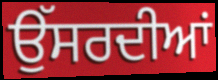
ਉੱਸਰਦੀਆਂ